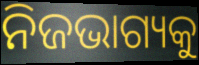
ନିଜଭାଗ୍ୟକୁ